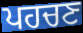
ਪਹਚਣ